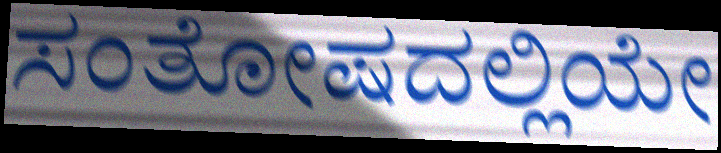
ಸಂತೋಷದಲ್ಲಿಯೇ